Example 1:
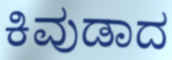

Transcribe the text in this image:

ಕಿವುಡಾದ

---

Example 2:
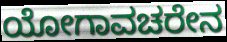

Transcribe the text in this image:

ಯೋಗಾವಚರೇನ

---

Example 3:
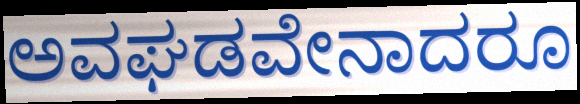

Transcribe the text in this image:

ಅವಘಡವೇನಾದರೂ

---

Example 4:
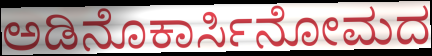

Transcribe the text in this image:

ಅಡಿನೊಕಾರ್ಸಿನೋಮದ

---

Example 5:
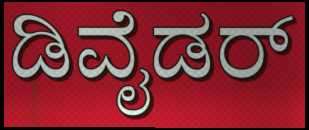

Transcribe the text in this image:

ಡಿವೈಡರ್